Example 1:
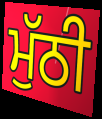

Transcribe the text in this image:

ਮੁੱਠੀ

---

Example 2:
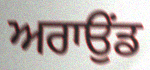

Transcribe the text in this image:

ਅਰਾਉਂਡ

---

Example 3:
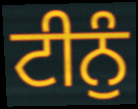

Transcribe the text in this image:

ਟੀਨੁੰ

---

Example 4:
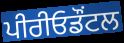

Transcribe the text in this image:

ਪੀਰੀਓਡੌਂਟਲ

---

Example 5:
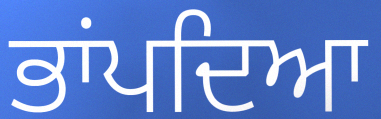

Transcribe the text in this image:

ਭਾਂਪਦਿਆ